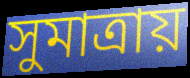
সুমাত্রায়